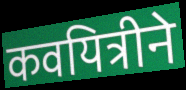
कवयित्रीने